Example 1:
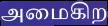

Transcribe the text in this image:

அமைகிற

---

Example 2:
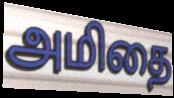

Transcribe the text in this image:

அமிதை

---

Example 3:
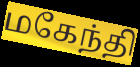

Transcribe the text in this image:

மகேந்தி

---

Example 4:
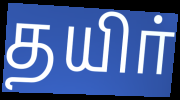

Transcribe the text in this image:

தயிர்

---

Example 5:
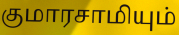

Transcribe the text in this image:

குமாரசாமியும்